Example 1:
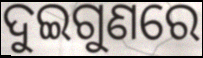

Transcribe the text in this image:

ଦୁଇଗୁଣରେ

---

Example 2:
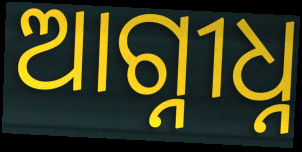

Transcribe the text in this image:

ଆଗ୍ନୀଧ୍ନ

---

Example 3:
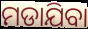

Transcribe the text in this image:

ମଡାଯିବା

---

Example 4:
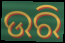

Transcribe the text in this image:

ଉରି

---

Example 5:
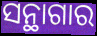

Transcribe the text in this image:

ସନ୍ଥାଗାର